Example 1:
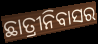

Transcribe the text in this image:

ଛାତ୍ରୀନିବାସର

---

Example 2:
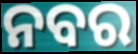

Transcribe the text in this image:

ନବର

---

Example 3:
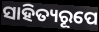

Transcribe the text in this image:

ସାହିତ୍ୟରୂପେ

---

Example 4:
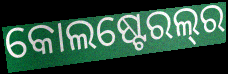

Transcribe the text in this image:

କୋଲଷ୍ଟେରଲ୍‌ର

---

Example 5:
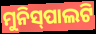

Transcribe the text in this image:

ମୁନିସ୍‍ପାଲଟି